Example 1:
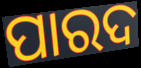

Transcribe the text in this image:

ପାରଦ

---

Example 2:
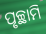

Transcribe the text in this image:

ପୃଚ୍ଛାମି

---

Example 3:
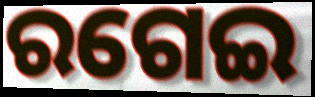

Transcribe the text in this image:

ରଗେଇ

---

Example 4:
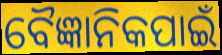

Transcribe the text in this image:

ବୈଜ୍ଞାନିକପାଇଁ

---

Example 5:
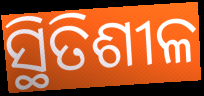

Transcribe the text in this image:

ସ୍ଥିତିଶୀଳ